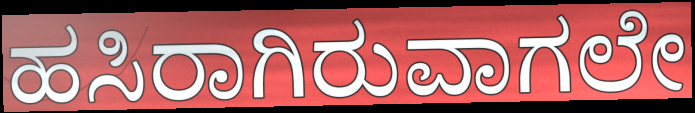
ಹಸಿರಾಗಿರುವಾಗಲೇ